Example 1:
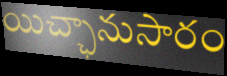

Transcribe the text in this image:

యిచ్ఛానుసారం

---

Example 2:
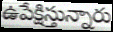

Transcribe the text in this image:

ఉపేక్షిస్తున్నారు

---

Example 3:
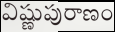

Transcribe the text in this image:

విష్ణుపురాణం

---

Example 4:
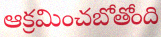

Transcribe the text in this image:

ఆక్రమించబోతోంది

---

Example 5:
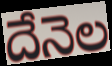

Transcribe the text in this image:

దేనెల